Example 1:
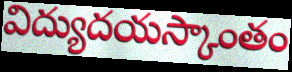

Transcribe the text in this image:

విద్యుదయస్కాంతం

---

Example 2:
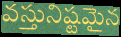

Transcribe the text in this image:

వస్తునిష్టమైన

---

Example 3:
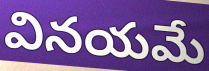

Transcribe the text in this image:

వినయమే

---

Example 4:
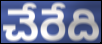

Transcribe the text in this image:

చేరేది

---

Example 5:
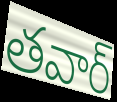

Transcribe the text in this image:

తవార్